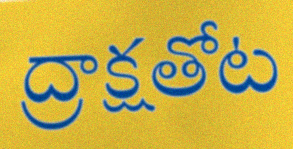
ద్రాక్షతోట